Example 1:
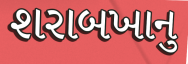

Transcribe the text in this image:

શરાબખાનુ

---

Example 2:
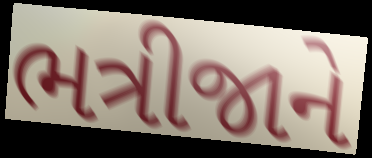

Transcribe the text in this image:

ભત્રીજાને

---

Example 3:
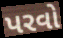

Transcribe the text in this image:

પરવો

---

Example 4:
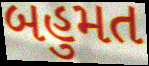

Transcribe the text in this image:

બહુમત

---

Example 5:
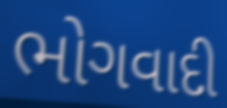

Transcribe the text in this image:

ભોગવાદી